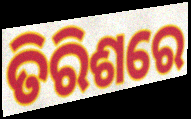
ତିରିଶରେ